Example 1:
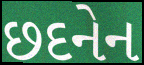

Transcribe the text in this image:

છદનેન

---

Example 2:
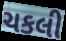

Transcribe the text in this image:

ચકલી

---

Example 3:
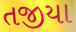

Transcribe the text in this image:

તજીયા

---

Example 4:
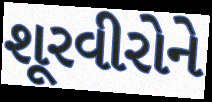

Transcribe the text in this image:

શૂરવીરોને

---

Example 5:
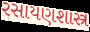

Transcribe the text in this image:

રસાયણશાસ્ત્ર